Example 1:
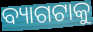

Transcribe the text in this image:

ବ୍ୟାଗଟାକୁ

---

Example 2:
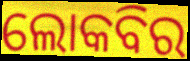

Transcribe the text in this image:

ଲୋକବିର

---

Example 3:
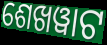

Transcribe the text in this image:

ଶେଖୱାଟ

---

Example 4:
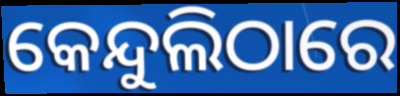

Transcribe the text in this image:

କେନ୍ଦୁଲିଠାରେ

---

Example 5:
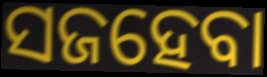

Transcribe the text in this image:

ସଜହେବା